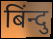
बिंन्दु